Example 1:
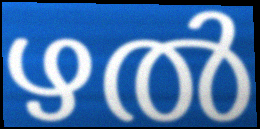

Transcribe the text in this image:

ഴൽ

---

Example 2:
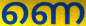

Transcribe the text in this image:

ണെ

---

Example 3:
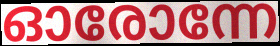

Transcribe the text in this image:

ഓരോന്നേ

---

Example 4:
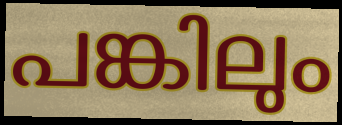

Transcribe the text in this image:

പങ്കിലും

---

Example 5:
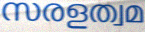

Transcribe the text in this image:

സരളത്വമ